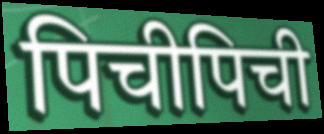
पिचीपिची